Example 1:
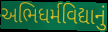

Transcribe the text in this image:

અભિધર્મવિદ્યાનું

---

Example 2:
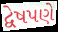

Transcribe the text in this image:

દ્વેષપણે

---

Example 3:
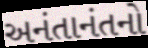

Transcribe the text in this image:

અનંતાનંતનો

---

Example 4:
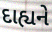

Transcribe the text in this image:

દાહ્યને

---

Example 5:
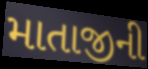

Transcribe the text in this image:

માતાજીની